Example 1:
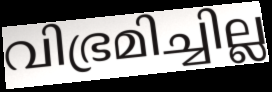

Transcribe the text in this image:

വിഭ്രമിച്ചില്ല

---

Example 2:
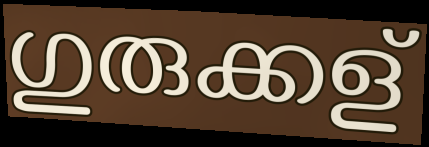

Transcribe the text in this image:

ഗുരുക്കള്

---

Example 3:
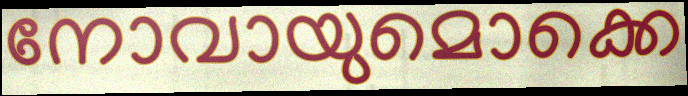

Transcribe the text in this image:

നോവായുമൊക്കെ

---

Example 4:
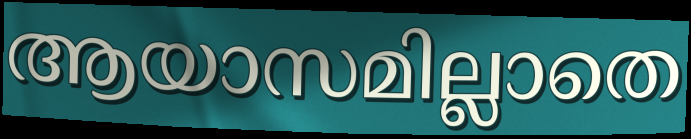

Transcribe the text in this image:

ആയാസമില്ലാതെ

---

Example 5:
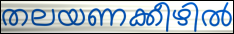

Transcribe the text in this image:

തലയണക്കീഴിൽ